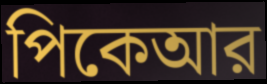
পিকেআর